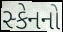
સ્કેનનો